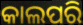
କାଲପରି